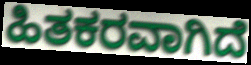
ಹಿತಕರವಾಗಿದೆ